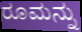
ರೂಮನ್ನು